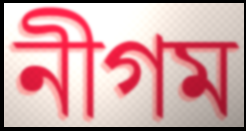
নীগম